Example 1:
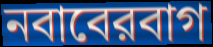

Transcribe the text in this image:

নবাবেরবাগ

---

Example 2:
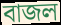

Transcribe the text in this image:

বাজল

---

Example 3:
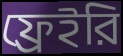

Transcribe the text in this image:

ফ্রেইরি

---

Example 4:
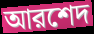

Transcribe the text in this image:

আরশেদ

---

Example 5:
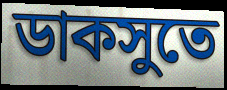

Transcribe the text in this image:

ডাকসুতে